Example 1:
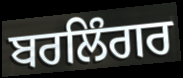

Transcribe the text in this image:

ਬਰਲਿੰਗਰ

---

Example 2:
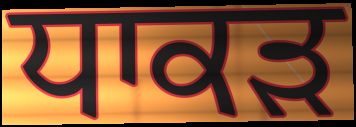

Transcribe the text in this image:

ਧਾਕੜ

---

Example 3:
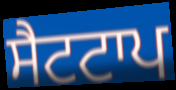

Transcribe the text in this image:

ਸੈਟਟਾਪ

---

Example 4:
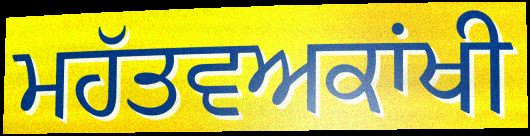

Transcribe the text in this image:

ਮਹੱਤਵਅਕਾਂਖੀ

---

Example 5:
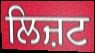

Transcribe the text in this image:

ਲਿਜ਼ਟ